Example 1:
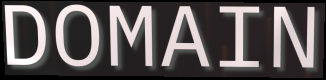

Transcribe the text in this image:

DOMAIN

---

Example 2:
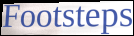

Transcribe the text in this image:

Footsteps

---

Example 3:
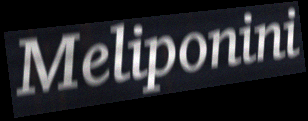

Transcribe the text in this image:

Meliponini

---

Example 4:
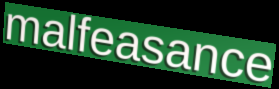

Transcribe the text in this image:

malfeasance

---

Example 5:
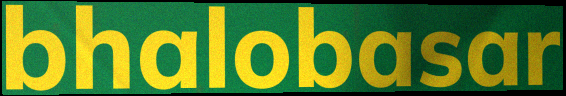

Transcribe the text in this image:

bhalobasar